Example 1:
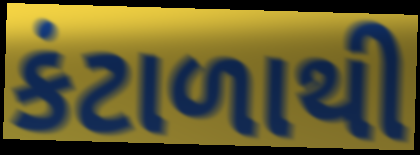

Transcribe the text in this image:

કંટાળાથી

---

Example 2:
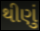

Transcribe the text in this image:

થીણું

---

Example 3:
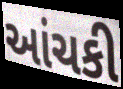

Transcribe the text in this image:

આંચકી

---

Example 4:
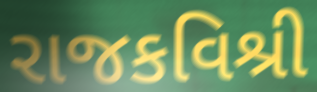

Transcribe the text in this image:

રાજકવિશ્રી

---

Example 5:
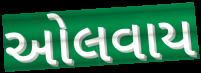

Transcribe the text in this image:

ઓલવાય